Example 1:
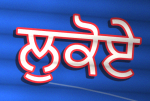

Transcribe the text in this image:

ਲੁਕੋਏ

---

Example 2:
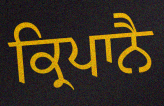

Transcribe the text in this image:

ਕ੍ਰਿਪਾਨੈ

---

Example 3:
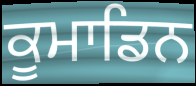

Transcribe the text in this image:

ਕੂਮਾਡਿਨ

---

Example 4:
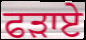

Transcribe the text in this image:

ਫੜਾਏ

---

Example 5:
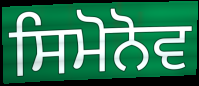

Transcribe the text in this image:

ਸਿਮੋਨੋਵ